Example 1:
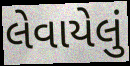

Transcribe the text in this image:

લેવાયેલું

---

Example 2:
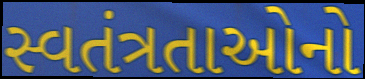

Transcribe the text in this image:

સ્વતંત્રતાઓનો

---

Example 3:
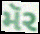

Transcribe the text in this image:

મૅર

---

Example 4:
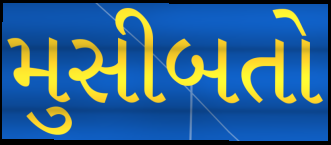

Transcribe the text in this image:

મુસીબતો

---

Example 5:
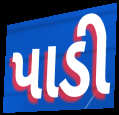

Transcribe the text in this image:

પાડી